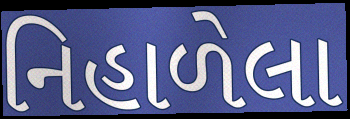
નિહાળેલા